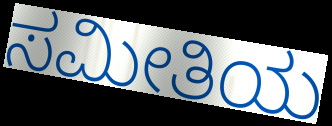
ಸಮೀತಿಯ